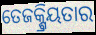
ତେଜକ୍ଶ୍ରିୟତାର